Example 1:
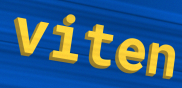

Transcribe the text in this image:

viten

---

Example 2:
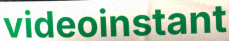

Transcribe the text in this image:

videoinstant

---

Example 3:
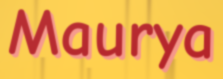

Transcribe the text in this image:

Maurya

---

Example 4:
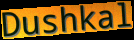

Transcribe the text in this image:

Dushkal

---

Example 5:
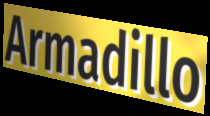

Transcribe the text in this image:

Armadillo